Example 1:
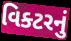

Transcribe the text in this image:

વિક્ટરનું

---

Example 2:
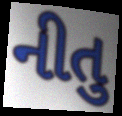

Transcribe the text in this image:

નીતુ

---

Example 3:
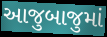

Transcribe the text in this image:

આજુબાજુમાં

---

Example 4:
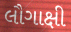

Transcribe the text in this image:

લૌગાક્ષી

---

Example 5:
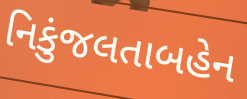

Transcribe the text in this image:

નિકુંજલતાબહેન